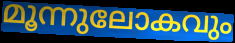
മൂന്നുലോകവും